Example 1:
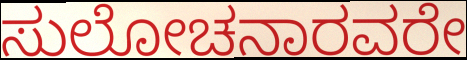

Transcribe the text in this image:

ಸುಲೋಚನಾರವರೇ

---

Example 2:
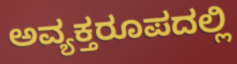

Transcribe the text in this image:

ಅವ್ಯಕ್ತರೂಪದಲ್ಲಿ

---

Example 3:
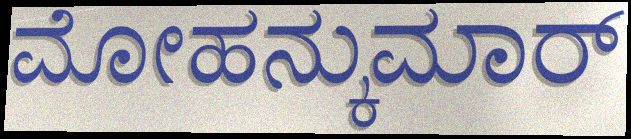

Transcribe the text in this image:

ಮೋಹನ್ಕುಮಾರ್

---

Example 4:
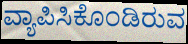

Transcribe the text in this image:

ವ್ಯಾಪಿಸಿಕೊಂಡಿರುವ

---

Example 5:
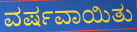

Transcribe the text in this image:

ವರ್ಷವಾಯಿತು